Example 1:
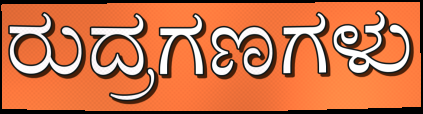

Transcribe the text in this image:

ರುದ್ರಗಣಗಳು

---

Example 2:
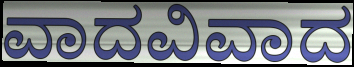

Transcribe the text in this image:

ವಾದವಿವಾದ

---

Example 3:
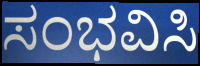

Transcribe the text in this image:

ಸಂಭವಿಸಿ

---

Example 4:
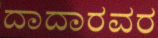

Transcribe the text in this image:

ದಾದಾರವರ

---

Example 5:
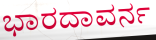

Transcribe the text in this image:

ಭಾರದಾವರ್ನ